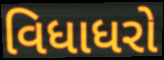
વિધાધરો